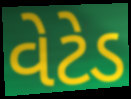
વેટેડ